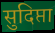
सुदिप्ता